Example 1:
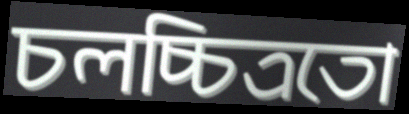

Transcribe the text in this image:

চলচ্চিত্ৰতো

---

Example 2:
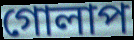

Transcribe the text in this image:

গোলাপ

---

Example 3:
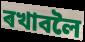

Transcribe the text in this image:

ৰখাবলৈ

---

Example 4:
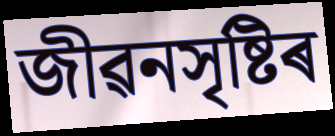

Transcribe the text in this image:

জীৱনসৃষ্টিৰ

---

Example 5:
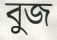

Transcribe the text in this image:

বুজ